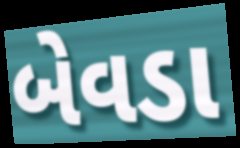
બેવડા